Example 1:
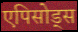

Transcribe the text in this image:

एपिसोड्स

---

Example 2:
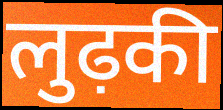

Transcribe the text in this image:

लुढ़की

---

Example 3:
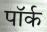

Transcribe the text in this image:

पॉर्क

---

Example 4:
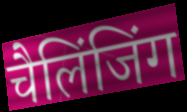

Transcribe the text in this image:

चैलिंजिंग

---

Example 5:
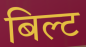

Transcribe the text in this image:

बिल्‍ट